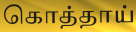
கொத்தாய்